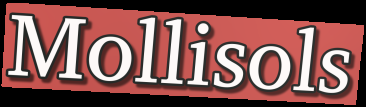
Mollisols